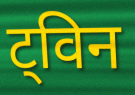
ट्विन